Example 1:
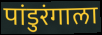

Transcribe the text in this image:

पांडुरंगाला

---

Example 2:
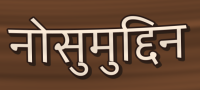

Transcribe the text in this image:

नोसुमुद्दिन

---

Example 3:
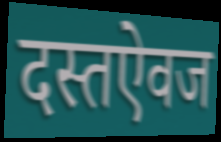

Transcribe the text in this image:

दस्तऐवज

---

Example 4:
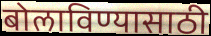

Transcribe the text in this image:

बोलाविण्यासाठी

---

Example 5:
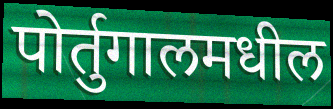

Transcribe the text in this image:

पोर्तुगालमधील